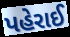
પહેરાઈ